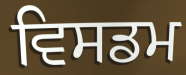
ਵਿਸਡਮ